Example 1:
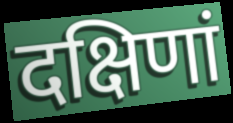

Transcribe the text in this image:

दक्षिणां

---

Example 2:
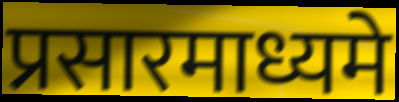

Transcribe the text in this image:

प्रसारमाध्यमे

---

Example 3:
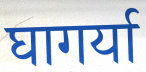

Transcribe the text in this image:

घागर्या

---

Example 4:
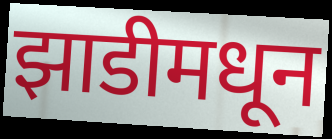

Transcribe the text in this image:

झाडीमधून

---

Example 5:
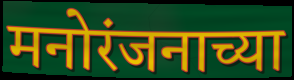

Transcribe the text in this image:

मनोरंजनाच्या